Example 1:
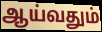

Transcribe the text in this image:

ஆய்வதும்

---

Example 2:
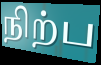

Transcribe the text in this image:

நிற்ப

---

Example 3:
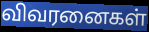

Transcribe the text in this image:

விவரனைகள்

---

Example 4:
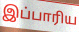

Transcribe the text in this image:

இப்பாரிய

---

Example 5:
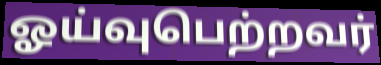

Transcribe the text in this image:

ஓய்வுபெற்றவர்